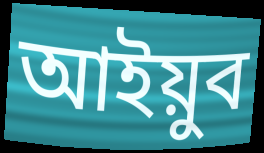
আইয়ুব